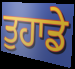
ਤੁਹਾਡੇ